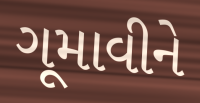
ગૂમાવીને